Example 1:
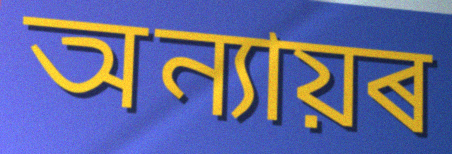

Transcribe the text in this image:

অন্যায়ৰ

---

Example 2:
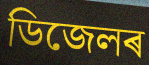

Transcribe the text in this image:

ডিজেলৰ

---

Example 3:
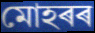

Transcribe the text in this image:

মোহৰৰ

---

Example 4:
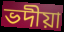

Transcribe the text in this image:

ভদীয়া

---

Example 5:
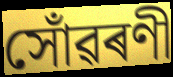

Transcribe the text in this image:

সোঁৱৰণী